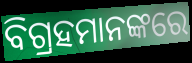
ବିଗ୍ରହମାନଙ୍କରେ